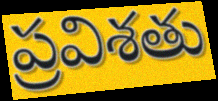
ప్రవిశతు